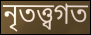
নৃতত্ত্বগত